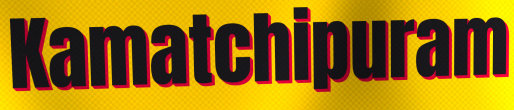
Kamatchipuram